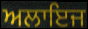
ਅਲਾਇਜ